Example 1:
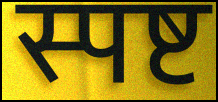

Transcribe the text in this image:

स्पष्ट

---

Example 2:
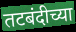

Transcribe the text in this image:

तटबंदीच्या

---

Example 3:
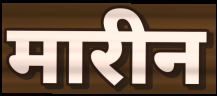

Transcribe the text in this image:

मारीन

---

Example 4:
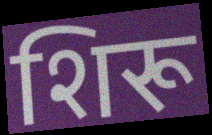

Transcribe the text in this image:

शिरू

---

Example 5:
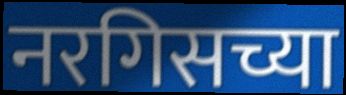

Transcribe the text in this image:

नरगिसच्या